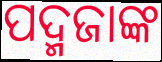
ପଦ୍ମଜାଙ୍କ